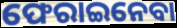
ଫେରାଇନେବା